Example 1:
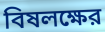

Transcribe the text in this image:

বিষলক্ষের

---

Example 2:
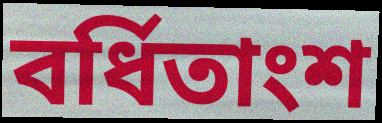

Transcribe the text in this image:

বর্ধিতাংশ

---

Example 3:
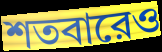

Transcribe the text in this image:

শতবারেও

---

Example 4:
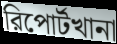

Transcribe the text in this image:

রিপোর্টখানা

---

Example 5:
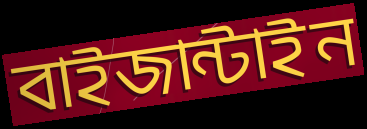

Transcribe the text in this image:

বাইজান্টাইন